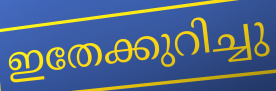
ഇതേക്കുറിച്ചു